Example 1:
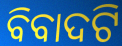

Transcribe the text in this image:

ବିବାଦଟି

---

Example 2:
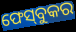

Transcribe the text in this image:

ଫେସ୍‌ବୁକର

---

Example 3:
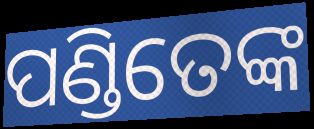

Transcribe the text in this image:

ପଣ୍ଡିତେଙ୍କ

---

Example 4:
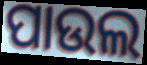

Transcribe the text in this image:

ପାଉଲ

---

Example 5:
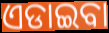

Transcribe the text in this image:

ଏଡାଇବା